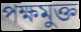
পক্ষমুক্ত